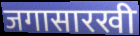
जगासारखी